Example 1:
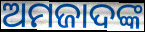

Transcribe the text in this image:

ଅମଜାଦଙ୍କ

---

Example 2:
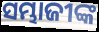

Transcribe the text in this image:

ସମ୍ଭାଜୀଙ୍କ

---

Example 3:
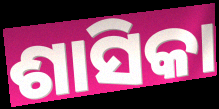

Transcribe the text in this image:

ଶାସିକା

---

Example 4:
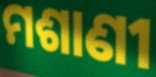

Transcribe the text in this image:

ମଶାଣୀ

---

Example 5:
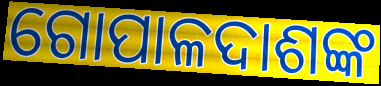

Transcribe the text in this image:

ଗୋପାଳଦାଶଙ୍କ